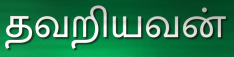
தவறியவன்